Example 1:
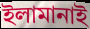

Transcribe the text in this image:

ইলামানাই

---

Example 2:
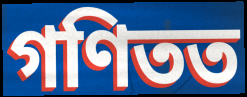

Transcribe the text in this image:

গণিতত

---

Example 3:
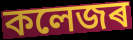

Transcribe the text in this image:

কলেজৰ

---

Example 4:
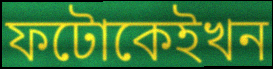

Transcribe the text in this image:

ফটোকেইখন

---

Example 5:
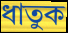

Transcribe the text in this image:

ধাতুক